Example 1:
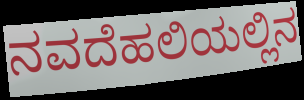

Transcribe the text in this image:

ನವದೆಹಲಿಯಲ್ಲಿನ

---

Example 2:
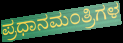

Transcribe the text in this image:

ಪ್ರಧಾನಮಂತ್ರಿಗಳ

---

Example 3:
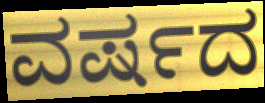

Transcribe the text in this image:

ವರ್ಷದ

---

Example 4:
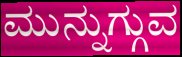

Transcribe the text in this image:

ಮುನ್ನುಗ್ಗುವ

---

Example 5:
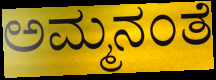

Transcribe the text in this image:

ಅಮ್ಮನಂತೆ